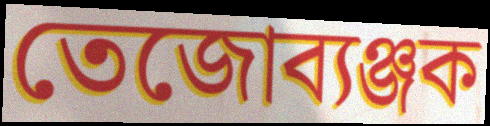
তেজোব্যঞ্জক